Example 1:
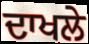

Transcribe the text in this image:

ਦਾਖਲੇ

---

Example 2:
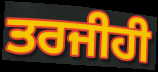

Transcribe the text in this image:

ਤਰਜੀਹੀ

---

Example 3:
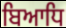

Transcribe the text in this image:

ਬਿਆਧਿ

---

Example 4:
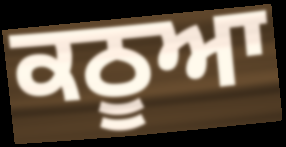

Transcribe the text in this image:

ਕਠੂਆ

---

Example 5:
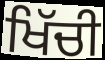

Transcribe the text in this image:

ਖਿੱਚੀ